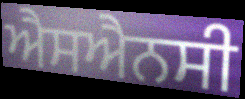
ਐਸਐਨਸੀ